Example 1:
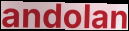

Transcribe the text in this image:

andolan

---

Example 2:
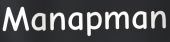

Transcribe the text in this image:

Manapman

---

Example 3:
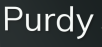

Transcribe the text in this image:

Purdy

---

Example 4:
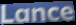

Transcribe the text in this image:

Lance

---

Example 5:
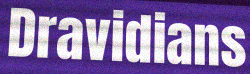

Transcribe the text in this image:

Dravidians